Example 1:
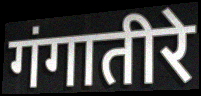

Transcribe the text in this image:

गंगातीरे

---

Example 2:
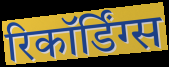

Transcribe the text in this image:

रिकॉर्डिंग्स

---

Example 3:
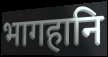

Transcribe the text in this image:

भागहानि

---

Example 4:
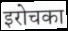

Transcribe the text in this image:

इरोचका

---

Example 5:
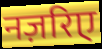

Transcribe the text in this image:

नज़रिए